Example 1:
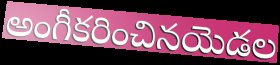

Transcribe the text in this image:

అంగీకరించినయెడల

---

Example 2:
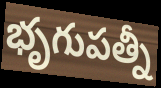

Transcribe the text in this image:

భృగుపత్నీ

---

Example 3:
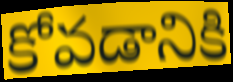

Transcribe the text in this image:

కోవడానికి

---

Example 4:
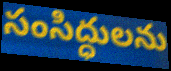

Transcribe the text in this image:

సంసిద్ధులను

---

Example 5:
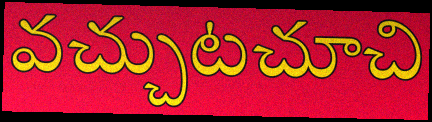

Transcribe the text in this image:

వచ్చుటచూచి